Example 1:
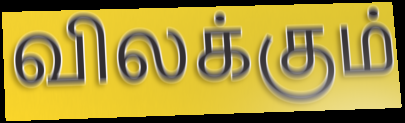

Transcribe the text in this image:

விலக்கும்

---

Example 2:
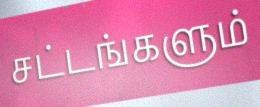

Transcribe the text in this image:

சட்டங்களும்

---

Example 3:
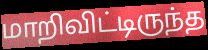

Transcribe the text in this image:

மாறிவிட்டிருந்த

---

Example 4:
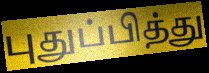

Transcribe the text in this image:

புதுப்பித்து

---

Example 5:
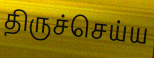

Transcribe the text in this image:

திருச்செய்ய